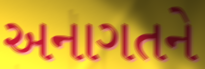
અનાગતને